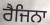
ਰੈਜਿਨਾ